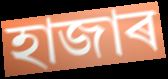
হাজাৰ